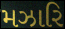
મઝારિ